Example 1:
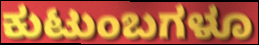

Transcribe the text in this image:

ಕುಟುಂಬಗಳೂ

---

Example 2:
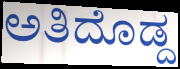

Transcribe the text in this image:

ಅತಿದೊಡ್ದ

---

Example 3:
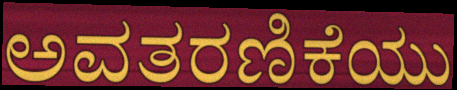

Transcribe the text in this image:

ಅವತರಣಿಕೆಯು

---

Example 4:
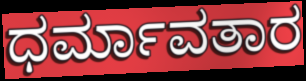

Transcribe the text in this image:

ಧರ್ಮಾವತಾರ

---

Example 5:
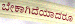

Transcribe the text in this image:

ಬೇಕಾಗಿದೆಯಾದರೂ